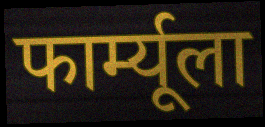
फार्म्यूला